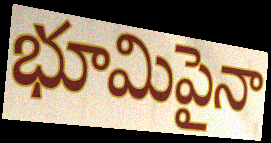
భూమిపైనా